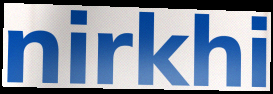
nirkhi